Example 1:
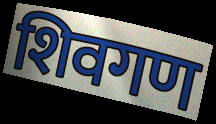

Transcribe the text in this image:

शिवगण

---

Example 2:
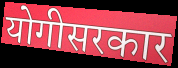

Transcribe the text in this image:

योगीसरकार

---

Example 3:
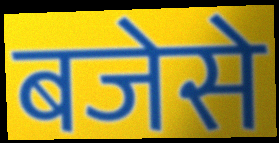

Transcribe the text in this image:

बजेसे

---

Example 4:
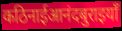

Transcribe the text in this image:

कठिनाईआनंदबुराइयाँ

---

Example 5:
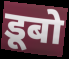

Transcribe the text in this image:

डूबो